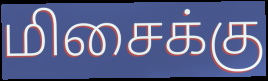
மிசைக்கு